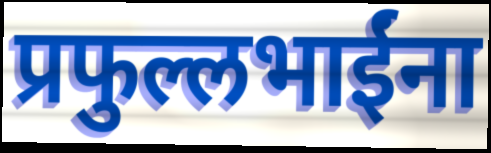
प्रफुल्लभाईंना